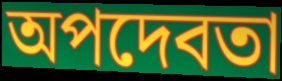
অপদেবতা